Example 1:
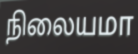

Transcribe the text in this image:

நிலையமா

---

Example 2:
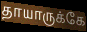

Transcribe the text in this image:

தாயாருக்கே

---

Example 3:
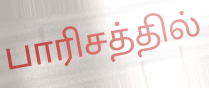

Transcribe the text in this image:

பாரிசத்தில்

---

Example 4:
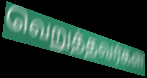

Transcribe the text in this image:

வெறுத்தவர்கள்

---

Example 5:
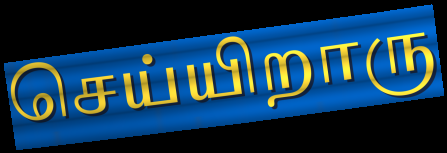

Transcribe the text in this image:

செய்யிறாரு